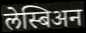
लेस्बिअन